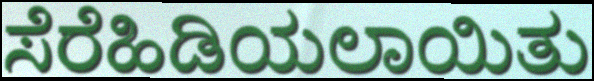
ಸೆರೆಹಿಡಿಯಲಾಯಿತು